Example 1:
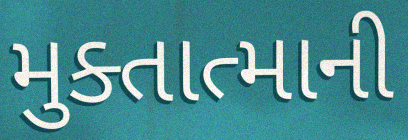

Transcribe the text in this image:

મુક્તાત્માની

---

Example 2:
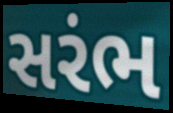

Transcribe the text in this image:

સરંભ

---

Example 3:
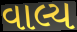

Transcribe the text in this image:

વાલ્ય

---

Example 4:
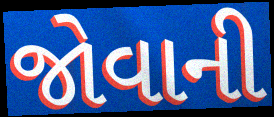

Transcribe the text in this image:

જોવાની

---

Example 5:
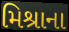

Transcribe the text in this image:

મિશ્રાના